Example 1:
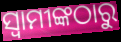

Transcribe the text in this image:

ସ୍ବାମୀଙ୍କଠାରୁ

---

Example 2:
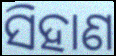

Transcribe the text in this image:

ସିହାଣ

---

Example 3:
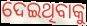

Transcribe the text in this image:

ଦେଇଥିବାକୁ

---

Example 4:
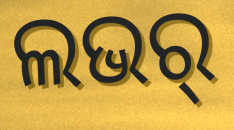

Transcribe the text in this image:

ଲଭର୍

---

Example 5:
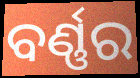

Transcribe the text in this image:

ବର୍ଣ୍ଣର